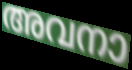
അവനാ